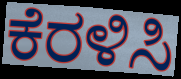
ಕೆರಳಿಸಿ